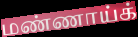
மண்ணாய்க்